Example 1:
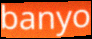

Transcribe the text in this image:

banyo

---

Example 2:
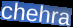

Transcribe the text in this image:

chehra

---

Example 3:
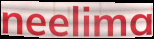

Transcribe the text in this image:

neelima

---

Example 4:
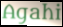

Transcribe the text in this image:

Agahi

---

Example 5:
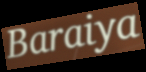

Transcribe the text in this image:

Baraiya